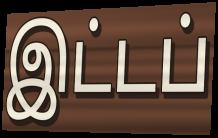
இட்டப்